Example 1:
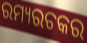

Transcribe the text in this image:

ରମ୍ୟରଚକର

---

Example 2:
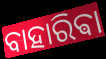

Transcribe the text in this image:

ବାହାରିଵା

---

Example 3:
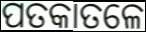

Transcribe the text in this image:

ପତକାତଳେ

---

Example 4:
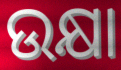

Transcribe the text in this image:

ଉକ୍ଷା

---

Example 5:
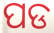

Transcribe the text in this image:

ପଡ